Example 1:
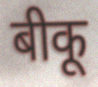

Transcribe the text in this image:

बीकू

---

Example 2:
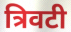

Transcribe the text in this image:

त्रिवटी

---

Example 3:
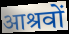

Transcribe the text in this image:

आश्रवों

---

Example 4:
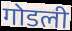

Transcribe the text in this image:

गोडली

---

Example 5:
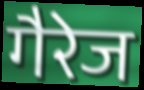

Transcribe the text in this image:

गैरेज